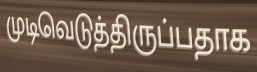
முடிவெடுத்திருப்பதாக